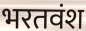
भरतवंश